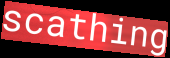
scathing